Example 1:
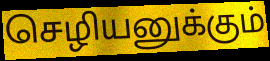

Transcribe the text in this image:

செழியனுக்கும்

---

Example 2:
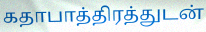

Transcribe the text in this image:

கதாபாத்திரத்துடன்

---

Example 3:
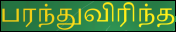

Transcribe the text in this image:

பரந்துவிரிந்த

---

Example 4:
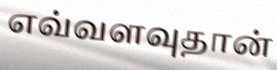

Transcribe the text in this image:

எவ்வளவுதான்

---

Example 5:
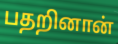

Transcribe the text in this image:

பதறினான்